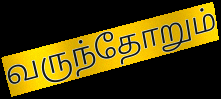
வருந்தோறும்